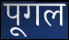
पूगल